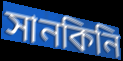
সানকিনি